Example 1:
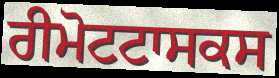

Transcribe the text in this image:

ਰੀਮੋਟਟਾਸਕਸ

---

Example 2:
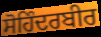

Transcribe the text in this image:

ਸੋਹਿੰਦਰਬੀਰ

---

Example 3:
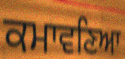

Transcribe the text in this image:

ਕਮਾਵਣਿਆ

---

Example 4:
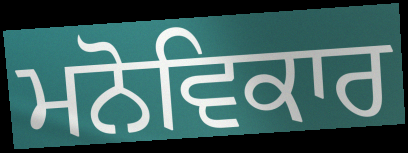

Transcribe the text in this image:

ਮਨੋਵਿਕਾਰ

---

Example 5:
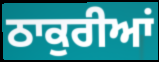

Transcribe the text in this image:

ਠਾਕੁਰੀਆਂ